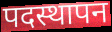
पदस्थापन